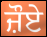
ਜ਼ੌਏ